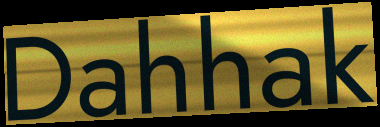
Dahhak